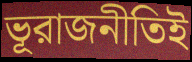
ভূরাজনীতিই